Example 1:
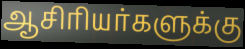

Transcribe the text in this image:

ஆசிரியர்களுக்கு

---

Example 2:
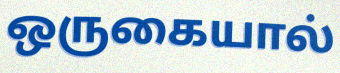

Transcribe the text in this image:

ஒருகையால்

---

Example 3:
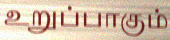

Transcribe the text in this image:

உறுப்பாகும்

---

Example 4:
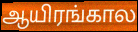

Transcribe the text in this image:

ஆயிரங்கால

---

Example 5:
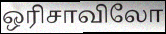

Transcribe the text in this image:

ஒரிசாவிலோ